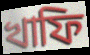
খাফি